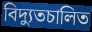
বিদ্যুতচালিত